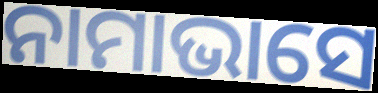
ନାମାଭାସେ